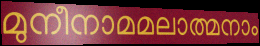
മുനീനാമമലാത്മനാം